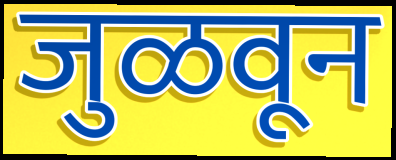
जुळवून